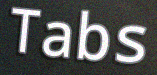
Tabs